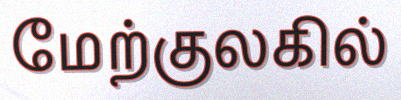
மேற்குலகில்